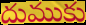
దుముకు